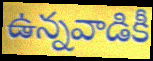
ఉన్నవాడికీ